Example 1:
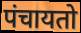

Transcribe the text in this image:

पंचायतो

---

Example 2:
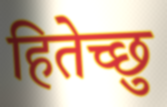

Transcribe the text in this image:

हितेच्छु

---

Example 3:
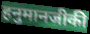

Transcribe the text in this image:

हनुमानजीकी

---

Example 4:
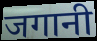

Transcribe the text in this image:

जगानी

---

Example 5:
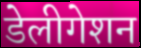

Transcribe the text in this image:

डेलीगेशन